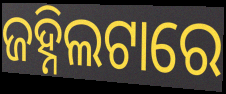
ଜହ୍ନିଲଟାରେ